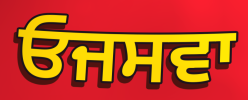
ਓਜਸਵਾ